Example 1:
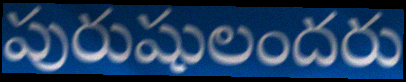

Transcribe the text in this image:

పురుషులందరు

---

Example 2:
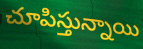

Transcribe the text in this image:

చూపిస్తున్నాయి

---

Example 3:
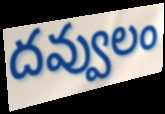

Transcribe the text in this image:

దవ్వులం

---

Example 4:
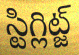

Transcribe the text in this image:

స్టిగ్లిట్జ్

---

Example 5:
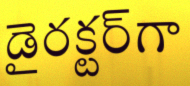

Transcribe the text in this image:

డైరక్టర్‌గా